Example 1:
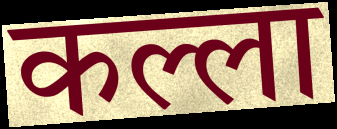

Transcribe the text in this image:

कल्ला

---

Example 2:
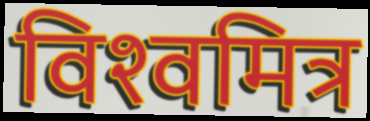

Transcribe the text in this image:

विश्वमित्र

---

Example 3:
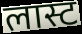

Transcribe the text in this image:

लास्ट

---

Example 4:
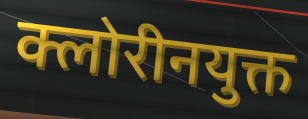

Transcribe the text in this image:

क्लोरीनयुक्त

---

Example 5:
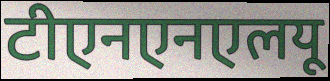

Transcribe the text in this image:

टीएनएनएलयू